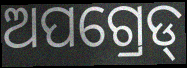
ଅପଗ୍ରେଡ୍